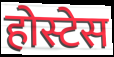
होस्टेस